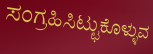
ಸಂಗ್ರಹಿಸಿಟ್ಟುಕೊಳ್ಳುವ